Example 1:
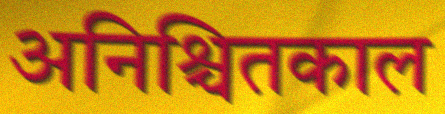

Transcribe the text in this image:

अनिश्चितकाल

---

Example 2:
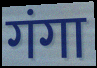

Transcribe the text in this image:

गंगा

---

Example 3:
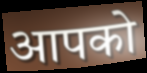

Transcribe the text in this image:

आपको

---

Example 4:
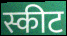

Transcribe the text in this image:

स्कीट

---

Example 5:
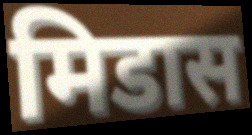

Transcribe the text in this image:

मिडास